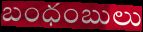
బంధంబులు